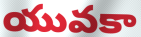
యువకా